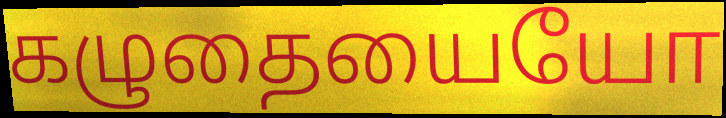
கழுதையையோ